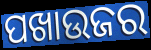
ପଖାଉଜର